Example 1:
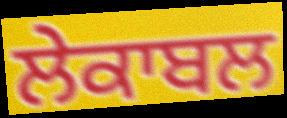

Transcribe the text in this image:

ਲੇਕਾਬਲ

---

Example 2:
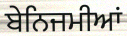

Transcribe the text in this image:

ਬੇਨਿਜਮੀਆਂ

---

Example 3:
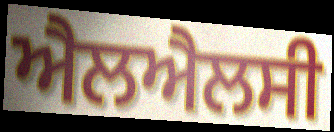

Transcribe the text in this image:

ਐਲਐਲਸੀ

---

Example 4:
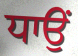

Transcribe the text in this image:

ਧਾਉਂ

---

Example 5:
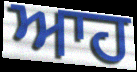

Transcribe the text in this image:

ਆਹ